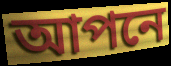
আপনে